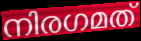
നിരഗമത്